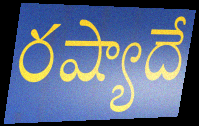
రష్యాదే